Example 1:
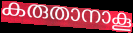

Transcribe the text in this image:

കരുതാനാകൂ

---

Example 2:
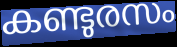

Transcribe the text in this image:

കണ്ടുരസം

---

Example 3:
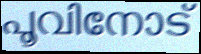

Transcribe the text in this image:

പൂവിനോട്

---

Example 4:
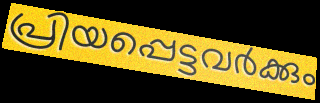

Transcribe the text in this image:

പ്രിയപ്പെട്ടവർക്കും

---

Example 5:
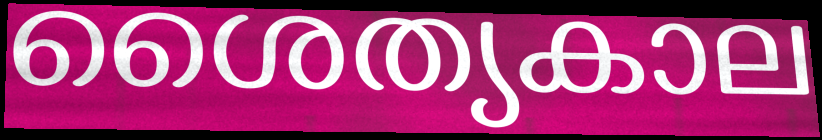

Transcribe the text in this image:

ശൈത്യകാല